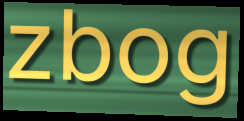
zbog